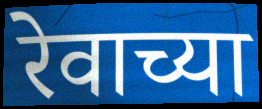
रेवाच्या